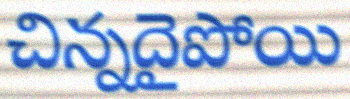
చిన్నదైపోయి